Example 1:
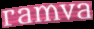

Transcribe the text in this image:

ramva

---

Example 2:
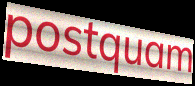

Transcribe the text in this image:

postquam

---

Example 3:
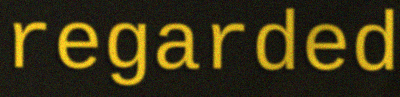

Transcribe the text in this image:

regarded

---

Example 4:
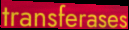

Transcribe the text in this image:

transferases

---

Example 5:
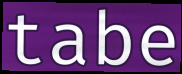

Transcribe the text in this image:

tabe